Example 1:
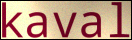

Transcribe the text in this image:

kaval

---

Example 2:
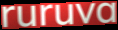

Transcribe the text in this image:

ruruva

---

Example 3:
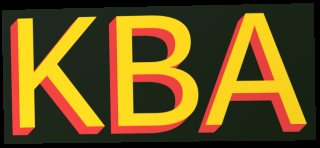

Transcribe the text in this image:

KBA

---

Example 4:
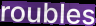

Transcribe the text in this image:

roubles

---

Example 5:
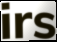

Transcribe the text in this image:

irs